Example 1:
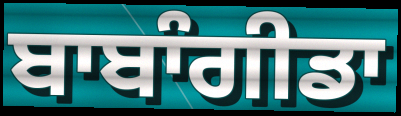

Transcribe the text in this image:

ਬਾਬਾੰਗੀਡਾ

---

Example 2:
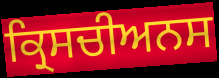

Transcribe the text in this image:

ਕ੍ਰਿਸਚੀਅਨਸ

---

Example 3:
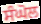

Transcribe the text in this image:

ਸੰਘੋਲ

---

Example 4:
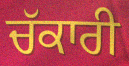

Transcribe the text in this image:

ਚੱਕਾਰੀ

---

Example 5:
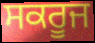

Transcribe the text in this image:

ਸਕਰੂਜ